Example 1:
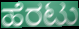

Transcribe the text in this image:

ಹೆರಟು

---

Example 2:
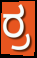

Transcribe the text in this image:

ರ್ರ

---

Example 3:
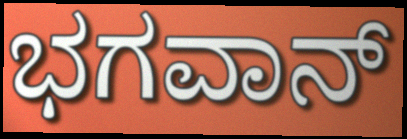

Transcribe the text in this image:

ಭಗವಾನ್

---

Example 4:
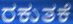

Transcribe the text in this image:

ರಕುತಕೆ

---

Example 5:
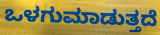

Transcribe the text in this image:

ಒಳಗುಮಾಡುತ್ತದೆ